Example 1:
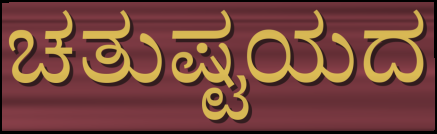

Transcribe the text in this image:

ಚತುಷ್ಟಯದ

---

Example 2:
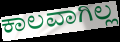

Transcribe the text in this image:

ಕಾಲವಾಗಿಲ್ಲ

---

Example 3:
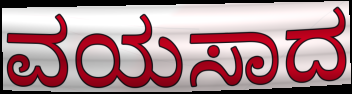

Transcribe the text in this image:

ವಯಸಾದ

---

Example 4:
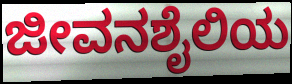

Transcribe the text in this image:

ಜೀವನಶೈಲಿಯ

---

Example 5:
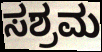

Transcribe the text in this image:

ಸಶ್ರಮ